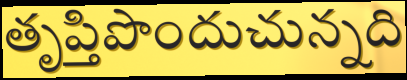
తృప్తిపొందుచున్నది